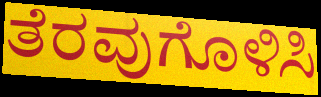
ತೆರವುಗೊಳಿಸಿ